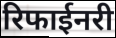
रिफाईनरी